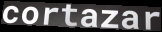
cortazar